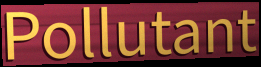
Pollutant